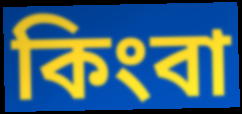
কিংবা